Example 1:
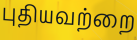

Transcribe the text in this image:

புதியவற்றை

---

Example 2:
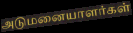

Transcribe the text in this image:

அடுமனையாளர்கள்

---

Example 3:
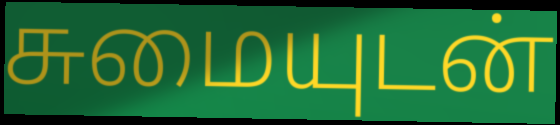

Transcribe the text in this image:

சுமையுடன்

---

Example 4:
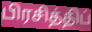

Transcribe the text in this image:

பிரசித்திப்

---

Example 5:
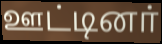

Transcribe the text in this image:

ஊட்டினர்